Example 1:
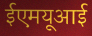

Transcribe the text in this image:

ईएमयूआई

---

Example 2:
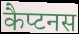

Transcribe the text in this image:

कैप्टनस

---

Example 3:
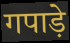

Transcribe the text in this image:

गपाड़े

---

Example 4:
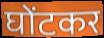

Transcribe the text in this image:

घोंटकर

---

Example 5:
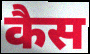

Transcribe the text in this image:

कैस